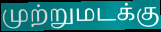
முற்றுமடக்கு